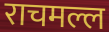
राचमल्ल